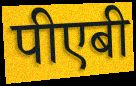
पीएबी